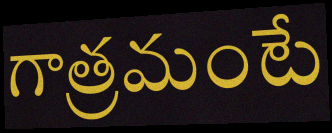
గాత్రమంటే